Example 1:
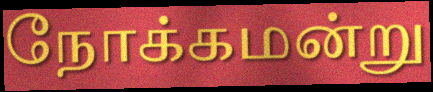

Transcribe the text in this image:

நோக்கமன்று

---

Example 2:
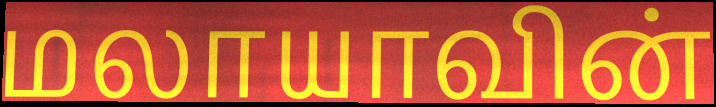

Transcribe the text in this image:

மலாயாவின்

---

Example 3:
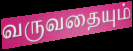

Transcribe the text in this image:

வருவதையும்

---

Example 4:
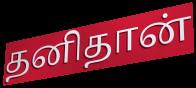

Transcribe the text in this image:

தனிதான்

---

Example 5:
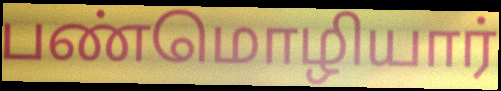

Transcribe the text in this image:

பண்மொழியார்